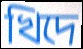
খিদে